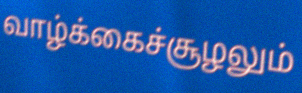
வாழ்க்கைச்சூழலும்